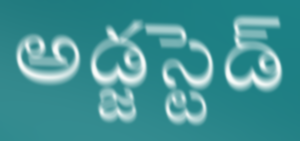
అడ్జస్టెడ్